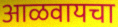
आळवायचा